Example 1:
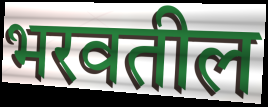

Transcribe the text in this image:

भरवतील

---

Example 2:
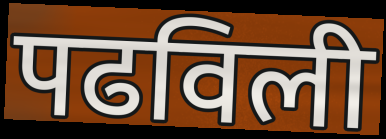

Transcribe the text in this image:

पढविली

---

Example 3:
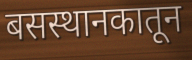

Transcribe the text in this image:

बसस्थानकातून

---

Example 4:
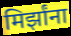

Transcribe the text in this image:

मिर्झांना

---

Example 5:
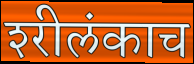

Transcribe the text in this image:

श्रीलंकाच